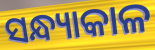
ସନ୍ଧ୍ୟାକାଳ